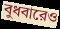
বুধবারেও